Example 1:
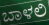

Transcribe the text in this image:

ಬಾಳಲಿ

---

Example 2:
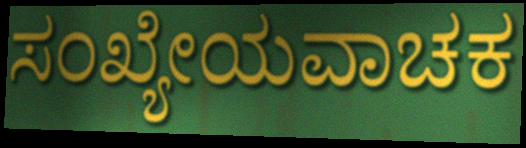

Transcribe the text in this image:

ಸಂಖ್ಯೇಯವಾಚಕ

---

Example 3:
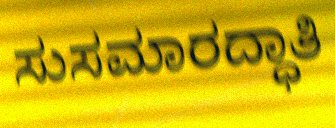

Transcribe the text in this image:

ಸುಸಮಾರದ್ಧಾತಿ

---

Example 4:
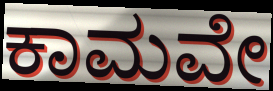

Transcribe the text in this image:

ಕಾಮವೇ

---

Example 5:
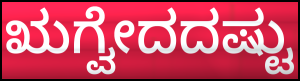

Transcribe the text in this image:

ಋಗ್ವೇದದಷ್ಟು